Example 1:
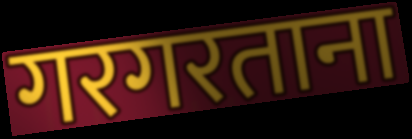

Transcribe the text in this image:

गरगरताना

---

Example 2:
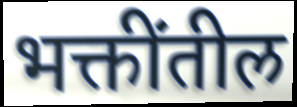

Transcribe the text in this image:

भक्तींतील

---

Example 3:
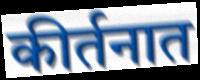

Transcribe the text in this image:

कीर्तनात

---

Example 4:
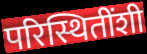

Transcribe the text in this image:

परिस्थितींशी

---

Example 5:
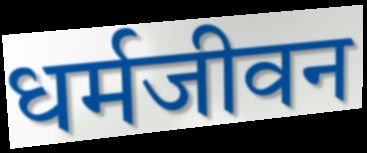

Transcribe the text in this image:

धर्मजीवन